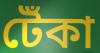
টেঁকা